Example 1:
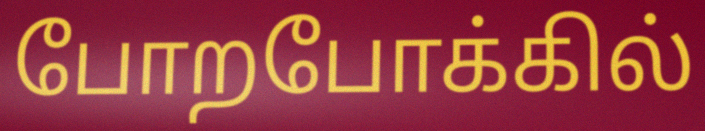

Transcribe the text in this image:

போறபோக்கில்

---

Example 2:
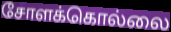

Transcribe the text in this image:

சோளக்கொல்லை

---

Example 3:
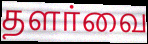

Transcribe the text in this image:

தளர்வை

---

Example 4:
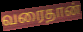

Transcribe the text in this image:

வரைதான்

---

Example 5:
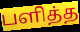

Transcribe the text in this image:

பளித்த